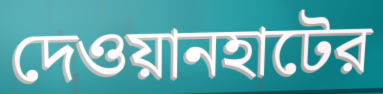
দেওয়ানহাটের